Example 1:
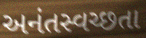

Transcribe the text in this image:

અનંતસ્વચ્છતા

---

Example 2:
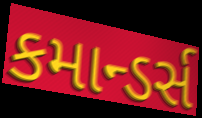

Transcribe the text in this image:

કમાન્ડર્સ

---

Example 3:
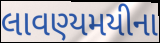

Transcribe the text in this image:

લાવણ્યમયીના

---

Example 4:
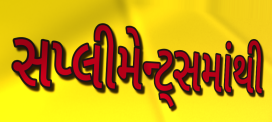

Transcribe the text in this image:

સપ્લીમેન્ટ્સમાંથી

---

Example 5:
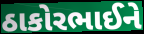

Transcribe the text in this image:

ઠાકોરભાઈને